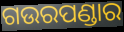
ଗଉରପଣ୍ଡାର